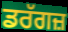
ਡਰੱਗਜ਼